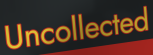
Uncollected